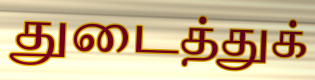
துடைத்துக்